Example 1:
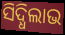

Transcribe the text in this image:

ସିଦ୍ଧିଲାଭ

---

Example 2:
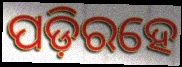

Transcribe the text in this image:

ପଡ଼ିରହେ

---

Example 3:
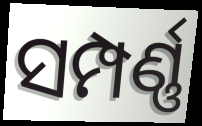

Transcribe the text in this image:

ସମ୍ପର୍ଣ୍ଣ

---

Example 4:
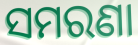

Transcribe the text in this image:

ସମରଣା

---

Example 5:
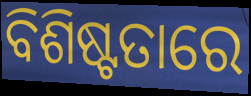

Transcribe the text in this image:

ବିଶିଷ୍ଟତାରେ